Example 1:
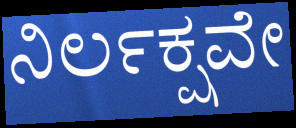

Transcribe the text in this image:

ನಿರ್ಲಕ್ಷವೇ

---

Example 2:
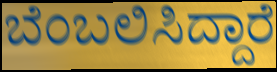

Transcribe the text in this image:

ಬೆಂಬಲಿಸಿದ್ದಾರೆ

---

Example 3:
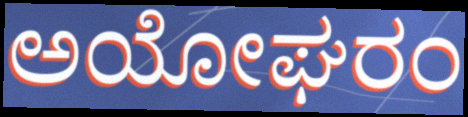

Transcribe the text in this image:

ಅಯೋಘರಂ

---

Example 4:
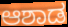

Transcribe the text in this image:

ಆಶಾಡ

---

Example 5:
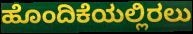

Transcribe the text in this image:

ಹೊಂದಿಕೆಯಲ್ಲಿರಲು